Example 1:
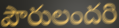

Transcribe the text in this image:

పౌరులందరి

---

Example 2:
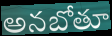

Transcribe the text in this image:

అనబోతూ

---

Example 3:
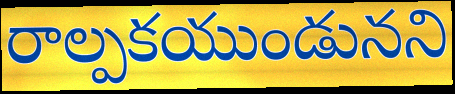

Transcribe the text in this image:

రాల్పకయుండునని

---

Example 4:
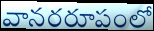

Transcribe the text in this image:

వానరరూపంలో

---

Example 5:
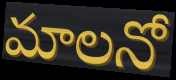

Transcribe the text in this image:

మాలనో